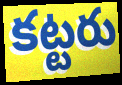
కట్టరు